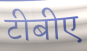
टीबीए